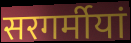
सरगर्मीयां